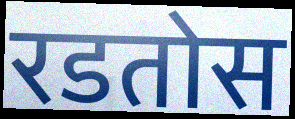
रडतोस